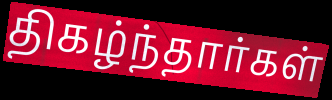
திகழ்ந்தார்கள்